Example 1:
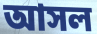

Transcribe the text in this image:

আসল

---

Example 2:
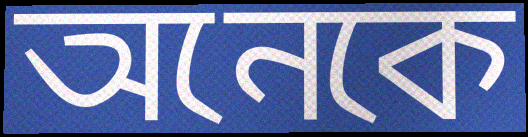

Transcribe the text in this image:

অনেকে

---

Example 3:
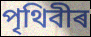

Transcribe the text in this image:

পৃথিবীৰ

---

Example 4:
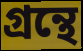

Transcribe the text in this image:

গ্ৰন্থে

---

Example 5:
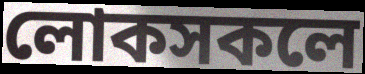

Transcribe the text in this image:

লোকসকলে